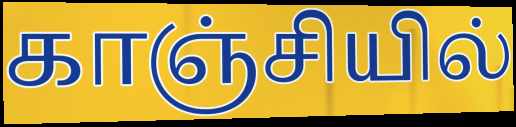
காஞ்சியில்